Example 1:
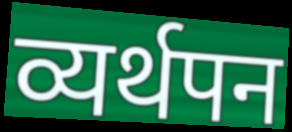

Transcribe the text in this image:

व्यर्थपन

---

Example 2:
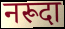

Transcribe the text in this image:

नरूदा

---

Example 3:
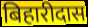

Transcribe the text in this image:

बिहारीदास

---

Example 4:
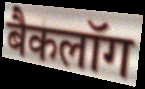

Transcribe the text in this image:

बैकलॉग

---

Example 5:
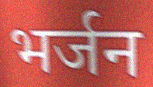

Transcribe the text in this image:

भर्जन